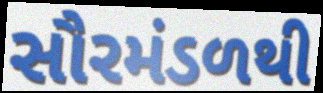
સૌરમંડળથી